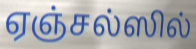
ஏஞ்சல்ஸில்